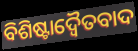
ବିଶିଷ୍ଟାଦ୍ୱୈତବାଦ